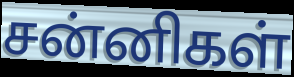
சன்னிகள்